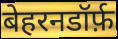
बेहरनडॉर्फ़